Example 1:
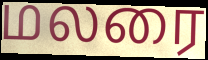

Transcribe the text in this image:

மலரை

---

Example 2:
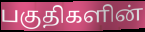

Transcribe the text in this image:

பகுதிகளின்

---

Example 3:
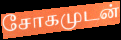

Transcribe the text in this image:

சோகமுடன்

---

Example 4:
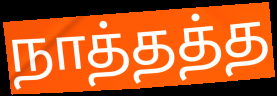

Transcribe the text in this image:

நாத்தத்த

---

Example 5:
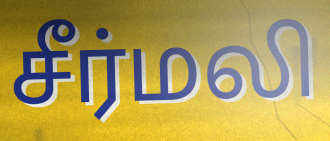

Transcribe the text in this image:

சீர்மலி